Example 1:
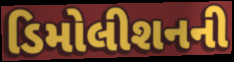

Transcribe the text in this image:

ડિમોલીશનની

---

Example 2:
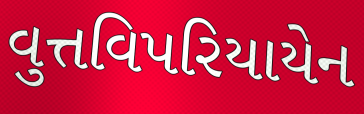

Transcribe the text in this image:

વુત્તવિપરિયાયેન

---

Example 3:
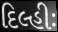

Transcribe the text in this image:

દિલ્હીઃ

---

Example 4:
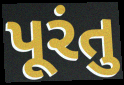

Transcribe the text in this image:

પૂરંતુ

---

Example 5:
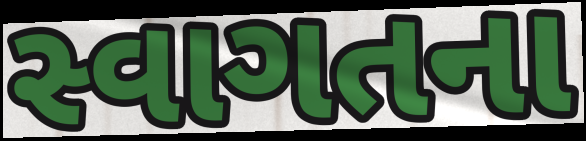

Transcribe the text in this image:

સ્વાગતના